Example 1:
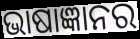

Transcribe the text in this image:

ଭାଷାଜ୍ଞାନର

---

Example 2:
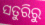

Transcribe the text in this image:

ସତୁରିରୁ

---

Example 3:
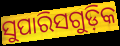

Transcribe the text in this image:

ସୁପାରିସଗୁଡ଼ିକ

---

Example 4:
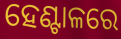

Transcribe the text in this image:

ହେଣ୍ଟାଳରେ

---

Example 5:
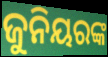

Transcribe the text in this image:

ଜୁନିୟରଙ୍କ